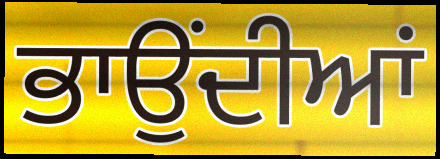
ਭਾਉਂਦੀਆਂ